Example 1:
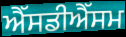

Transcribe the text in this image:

ਐੱਸਡੀਐੱਸਮ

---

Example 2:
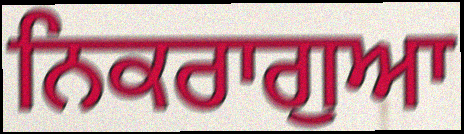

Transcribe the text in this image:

ਨਿਕਰਾਗੁਆ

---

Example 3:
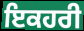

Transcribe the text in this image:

ਇਕਹਰੀ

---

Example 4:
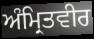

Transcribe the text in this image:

ਅੰਮ੍ਰਿਤਵੀਰ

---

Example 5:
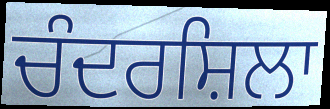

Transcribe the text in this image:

ਚੰਦਰਸ਼ਿਲਾ